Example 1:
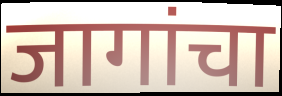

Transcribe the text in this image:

जागांचा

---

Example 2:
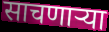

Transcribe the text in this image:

साचणार्‍या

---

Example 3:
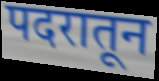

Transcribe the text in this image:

पदरातून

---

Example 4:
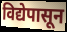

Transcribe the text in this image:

विद्येपासून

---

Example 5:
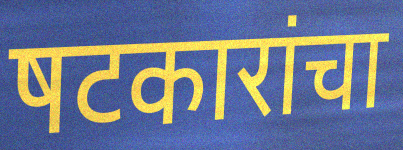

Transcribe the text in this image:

षटकारांचा